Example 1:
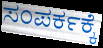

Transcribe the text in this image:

ಸಂಪರ್ಕಕ್ಕೆ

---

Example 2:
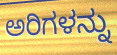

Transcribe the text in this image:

ಅರಿಗಳನ್ನು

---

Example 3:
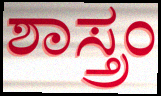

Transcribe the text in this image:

ಶಾಸ್ತ್ರಂ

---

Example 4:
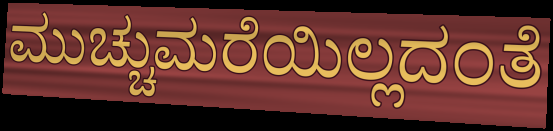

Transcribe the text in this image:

ಮುಚ್ಚುಮರೆಯಿಲ್ಲದಂತೆ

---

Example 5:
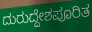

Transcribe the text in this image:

ದುರುದ್ದೇಶಪೂರಿತ